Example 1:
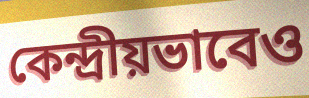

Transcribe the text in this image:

কেন্দ্রীয়ভাবেও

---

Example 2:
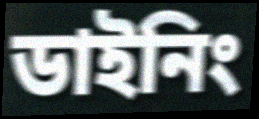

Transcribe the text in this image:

ডাইনিং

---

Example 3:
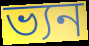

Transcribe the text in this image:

ভ্যন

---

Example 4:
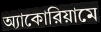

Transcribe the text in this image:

অ্যাকোরিয়ামে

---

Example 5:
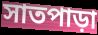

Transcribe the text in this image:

সাতপাড়া